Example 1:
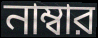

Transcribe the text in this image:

নাম্বার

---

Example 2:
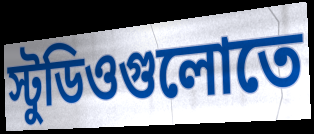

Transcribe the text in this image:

স্টুডিওগুলোতে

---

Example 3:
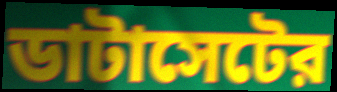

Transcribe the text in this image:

ডাটাসেটের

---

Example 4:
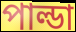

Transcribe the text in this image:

পাল্ডা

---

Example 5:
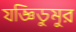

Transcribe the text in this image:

যজ্ঞিডুমুর